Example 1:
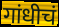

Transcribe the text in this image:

गांधीचं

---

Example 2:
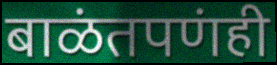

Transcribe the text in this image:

बाळंतपणंही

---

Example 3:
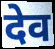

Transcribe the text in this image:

देव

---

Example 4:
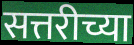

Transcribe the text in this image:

सत्तरीच्या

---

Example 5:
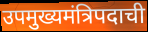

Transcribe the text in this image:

उपमुख्यमंत्रिपदाची